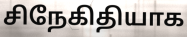
சிநேகிதியாக